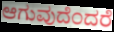
ಆಗುವುದೆಂದರೆ